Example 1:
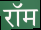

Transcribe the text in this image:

रॉम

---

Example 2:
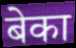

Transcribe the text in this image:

बेका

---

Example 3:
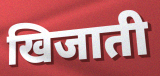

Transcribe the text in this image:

खिजाती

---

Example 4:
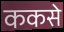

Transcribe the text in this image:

ककसे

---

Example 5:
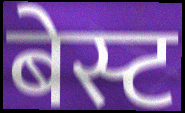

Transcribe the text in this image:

बेस्‍ट